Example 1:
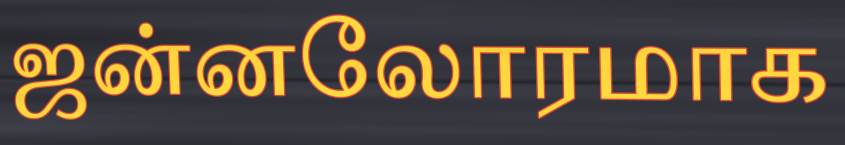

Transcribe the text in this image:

ஜன்னலோரமாக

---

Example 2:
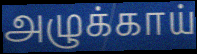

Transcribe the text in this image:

அழுக்காய்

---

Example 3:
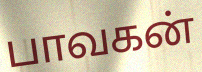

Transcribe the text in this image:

பாவகன்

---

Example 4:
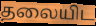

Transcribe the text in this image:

தலையிட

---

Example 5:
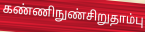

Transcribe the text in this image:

கண்ணிநுண்சிறுதாம்பு